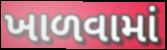
ખાળવામાં